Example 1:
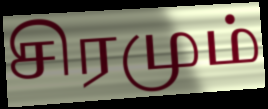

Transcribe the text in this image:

சிரமும்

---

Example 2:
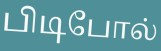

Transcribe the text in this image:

பிடிபோல்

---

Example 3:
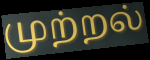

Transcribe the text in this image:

முற்றல்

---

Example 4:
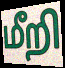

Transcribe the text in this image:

மீறி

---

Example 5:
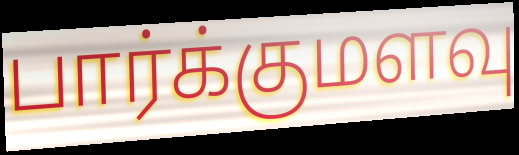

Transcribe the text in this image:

பார்க்குமளவு